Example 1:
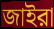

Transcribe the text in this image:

জাইরা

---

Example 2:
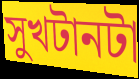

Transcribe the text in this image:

সুখটানটা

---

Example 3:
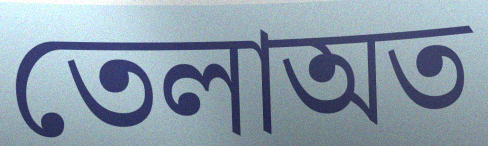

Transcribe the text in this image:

তেলাঅত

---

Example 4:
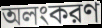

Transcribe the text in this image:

অলংকরণ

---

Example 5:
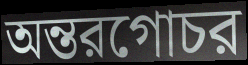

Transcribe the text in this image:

অন্তরগোচর